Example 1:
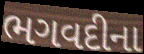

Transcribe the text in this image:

ભગવદીના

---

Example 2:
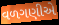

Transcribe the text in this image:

વળગણીએ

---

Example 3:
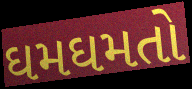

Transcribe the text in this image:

ઘમઘમતો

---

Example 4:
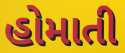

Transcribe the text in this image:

હોમાતી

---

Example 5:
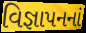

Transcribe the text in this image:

વિજ્ઞાપનનાં